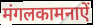
मंगलकामनाऐं